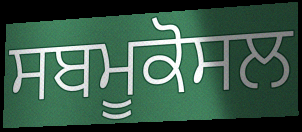
ਸਬਮੂਕੋਸਲ